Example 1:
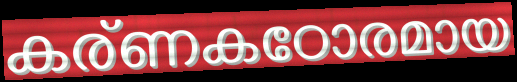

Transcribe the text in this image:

കര്ണകഠോരമായ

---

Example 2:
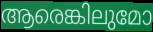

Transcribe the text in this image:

ആരെങ്കിലുമോ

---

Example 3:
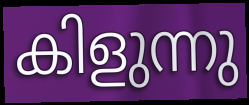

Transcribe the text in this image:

കിളുന്നു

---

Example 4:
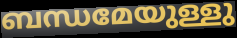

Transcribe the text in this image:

ബന്ധമേയുള്ളു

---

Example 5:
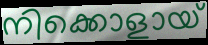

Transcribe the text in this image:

നിക്കൊളായ്